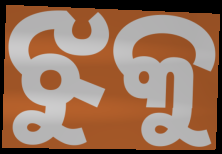
ଝୁକୁ